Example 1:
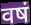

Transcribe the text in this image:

वषं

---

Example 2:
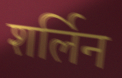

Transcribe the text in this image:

शर्लिन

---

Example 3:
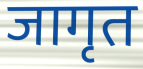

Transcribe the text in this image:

जागृत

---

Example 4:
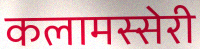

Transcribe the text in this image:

कलामस्सेरी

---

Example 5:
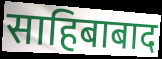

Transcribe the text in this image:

साहिबाबाद